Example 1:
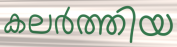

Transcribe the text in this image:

കലർത്തിയ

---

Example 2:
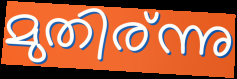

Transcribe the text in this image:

മുതിര്ന്നു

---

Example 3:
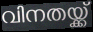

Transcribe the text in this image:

വിനതയ്ക്ക്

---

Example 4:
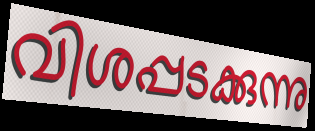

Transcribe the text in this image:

വിശപ്പടക്കുന്നു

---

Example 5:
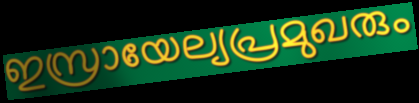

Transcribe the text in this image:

ഇസ്രായേല്യപ്രമുഖരും